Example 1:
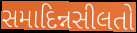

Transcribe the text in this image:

સમાદિન્નસીલતો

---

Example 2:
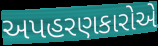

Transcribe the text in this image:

અપહરણકારોએ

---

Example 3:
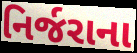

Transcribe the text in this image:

નિર્જરાના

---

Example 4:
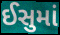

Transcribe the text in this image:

ઈસુમાં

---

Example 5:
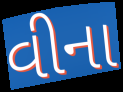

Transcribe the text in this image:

વીના